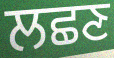
ਲਛਣ